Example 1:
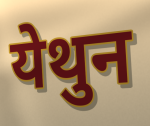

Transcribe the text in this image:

येथुन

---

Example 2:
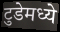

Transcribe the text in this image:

टुडेमध्ये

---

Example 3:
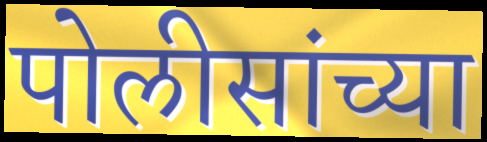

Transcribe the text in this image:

पोलीसांच्या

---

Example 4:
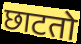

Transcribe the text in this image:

छाटतो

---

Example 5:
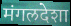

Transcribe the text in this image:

मंगलदेशा